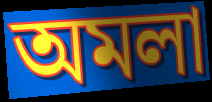
অমলা